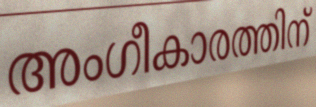
അംഗീകാരത്തിന്